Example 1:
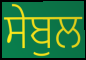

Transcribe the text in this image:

ਸੇਬੁਲ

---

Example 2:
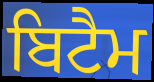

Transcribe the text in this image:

ਬਿਟੈਮ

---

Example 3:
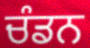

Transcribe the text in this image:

ਚੰਡਨ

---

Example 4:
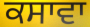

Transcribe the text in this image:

ਕਸਾਵਾ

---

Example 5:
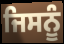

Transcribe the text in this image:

ਜਿਸਨੂੰ